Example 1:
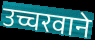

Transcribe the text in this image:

उच्चरवाने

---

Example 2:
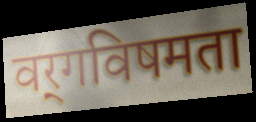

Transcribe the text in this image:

वर्गविषमता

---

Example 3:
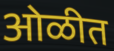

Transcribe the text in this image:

ओळीत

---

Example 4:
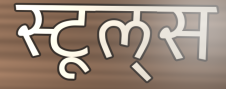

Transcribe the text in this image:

स्टूल्स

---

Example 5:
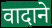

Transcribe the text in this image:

वादाने